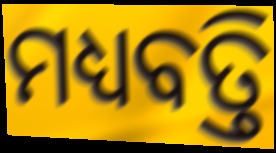
ମଧ୍ୟବତ୍ତି